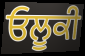
ਓਲੂਕੀ